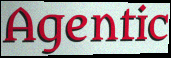
Agentic